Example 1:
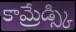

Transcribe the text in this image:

కామ్రేడ్స్కి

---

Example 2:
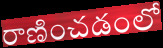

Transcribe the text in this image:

రాణించడంలో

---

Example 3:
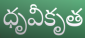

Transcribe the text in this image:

ధృవీకృత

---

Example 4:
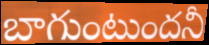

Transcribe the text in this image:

బాగుంటుందనీ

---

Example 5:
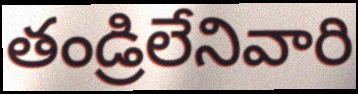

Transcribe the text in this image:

తండ్రిలేనివారి